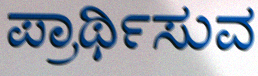
ಪ್ರಾರ್ಥಿಸುವ